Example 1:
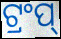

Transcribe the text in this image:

ଟ୍ରଂପ୍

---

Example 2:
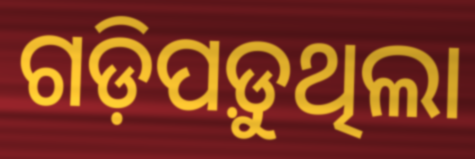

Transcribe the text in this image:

ଗଡ଼ିପଡ଼ୁଥିଲା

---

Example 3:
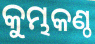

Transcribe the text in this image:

କୁମ୍ଭକଣ୍ଠ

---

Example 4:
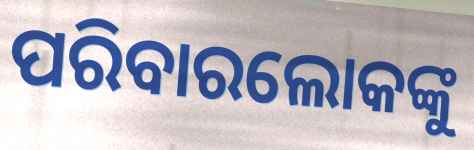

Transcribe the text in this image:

ପରିବାରଲୋକଙ୍କୁ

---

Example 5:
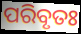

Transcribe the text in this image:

ପରିବୃତଃ